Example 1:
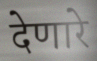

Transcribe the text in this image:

देणारे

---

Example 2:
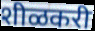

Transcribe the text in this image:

शीळकरी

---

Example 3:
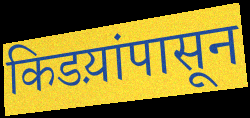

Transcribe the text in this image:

किडय़ांपासून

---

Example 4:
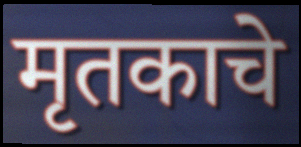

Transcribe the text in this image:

मृतकाचे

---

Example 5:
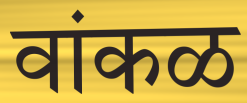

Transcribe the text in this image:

वांकळ